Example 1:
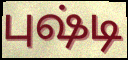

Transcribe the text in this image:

புஷ்டி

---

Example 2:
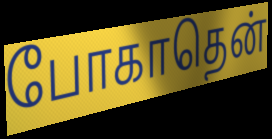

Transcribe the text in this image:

போகாதென்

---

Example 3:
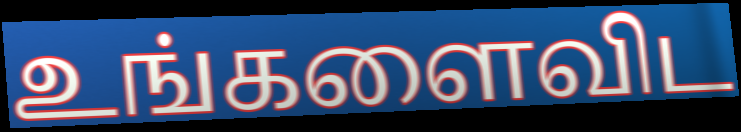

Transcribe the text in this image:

உங்களைவிட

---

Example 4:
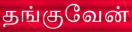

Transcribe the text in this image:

தங்குவேன்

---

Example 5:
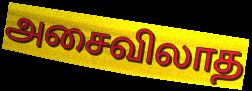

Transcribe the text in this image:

அசைவிலாத